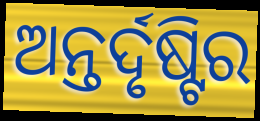
ଅନ୍ତର୍ଦୃଷ୍ଟିର